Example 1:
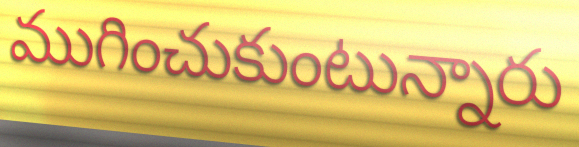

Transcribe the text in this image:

ముగించుకుంటున్నారు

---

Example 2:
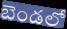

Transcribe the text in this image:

బెండలో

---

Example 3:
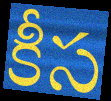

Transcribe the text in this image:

కీస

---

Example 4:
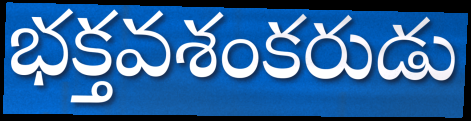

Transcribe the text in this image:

భక్తవశంకరుడు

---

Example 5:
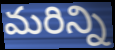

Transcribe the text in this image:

మరిన్ని